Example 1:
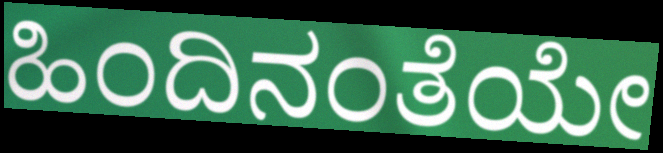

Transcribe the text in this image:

ಹಿಂದಿನಂತೆಯೇ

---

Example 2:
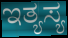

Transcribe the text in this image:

ಇತ್ಯಸ್ಯ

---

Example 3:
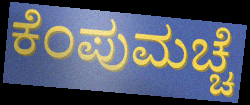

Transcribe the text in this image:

ಕೆಂಪುಮಚ್ಚೆ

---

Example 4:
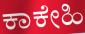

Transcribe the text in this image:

ಕಾಕೇಹಿ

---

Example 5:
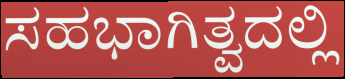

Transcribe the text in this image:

ಸಹಭಾಗಿತ್ವದಲ್ಲಿ